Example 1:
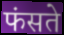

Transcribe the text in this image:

फंसते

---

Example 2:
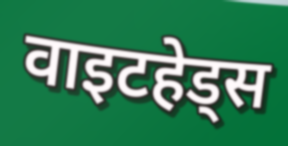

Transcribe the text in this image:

वाइटहेड्स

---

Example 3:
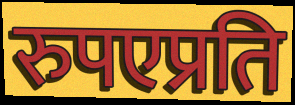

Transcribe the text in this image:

रुपएप्रति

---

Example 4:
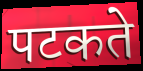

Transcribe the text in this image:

पटकते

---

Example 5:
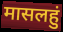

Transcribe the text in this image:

मासलहुं